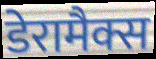
डेरामैक्स